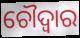
ଚୌଦ୍ଵାର